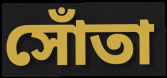
সোঁতা